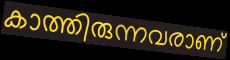
കാത്തിരുന്നവരാണ്